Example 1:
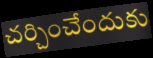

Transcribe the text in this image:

చర్చించేందుకు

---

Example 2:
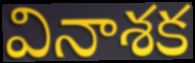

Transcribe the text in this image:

వినాశక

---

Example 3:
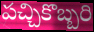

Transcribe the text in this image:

పచ్చికొబ్బరి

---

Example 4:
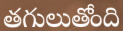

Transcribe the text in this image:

తగులుతోంది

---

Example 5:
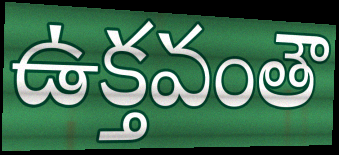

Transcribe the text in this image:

ఉక్తవంతౌ